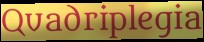
Quadriplegia